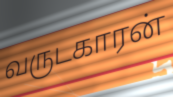
வருடகாரன்